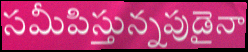
సమీపిస్తున్నపుడైనా